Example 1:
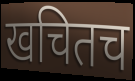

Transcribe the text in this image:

खचितच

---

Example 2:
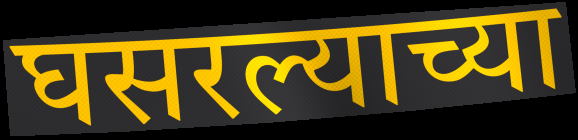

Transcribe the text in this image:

घसरल्याच्या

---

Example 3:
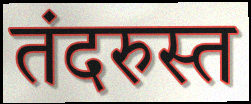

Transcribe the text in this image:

तंदरुस्त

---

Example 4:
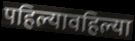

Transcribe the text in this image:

पहिल्यावहिल्या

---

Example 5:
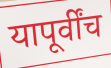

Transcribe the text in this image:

यापूर्वींच